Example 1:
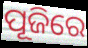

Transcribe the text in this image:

ପୂଜିରେ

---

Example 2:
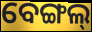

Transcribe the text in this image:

ବେଙ୍ଗଲ୍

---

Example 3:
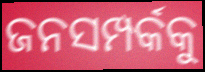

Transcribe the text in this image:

ଜନସମ୍ପର୍କକୁ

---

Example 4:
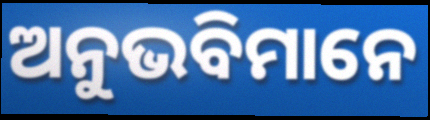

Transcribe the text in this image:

ଅନୁଭବିମାନେ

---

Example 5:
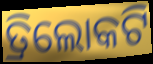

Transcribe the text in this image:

ତ୍ରିଲୋକଟି